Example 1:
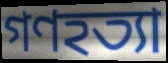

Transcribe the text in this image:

গণহত্যা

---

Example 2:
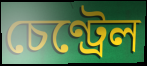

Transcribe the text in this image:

চেণ্ট্ৰেল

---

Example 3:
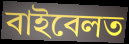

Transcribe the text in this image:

বাইবেলত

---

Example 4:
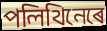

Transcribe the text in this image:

পলিথিনেৰে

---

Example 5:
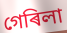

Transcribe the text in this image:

গেৰিলা